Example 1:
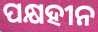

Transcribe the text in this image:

ପକ୍ଷହୀନ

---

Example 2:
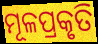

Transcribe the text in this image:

ମୂଳପ୍ରକୃତି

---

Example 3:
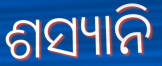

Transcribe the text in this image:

ଶସ୍ୟାନି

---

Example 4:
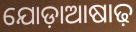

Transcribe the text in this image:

ଯୋଡ଼ାଆଷାଢ଼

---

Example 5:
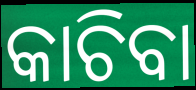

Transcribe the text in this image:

କାଚିବା